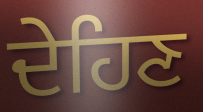
ਦੇਹਿਣ